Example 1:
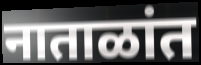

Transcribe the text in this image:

नाताळांत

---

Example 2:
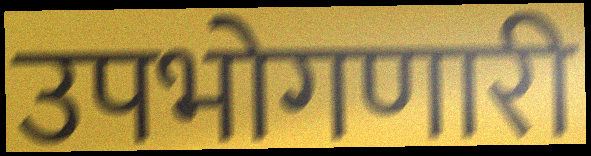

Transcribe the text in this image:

उपभोगणारी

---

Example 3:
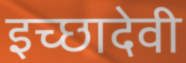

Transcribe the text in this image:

इच्छादेवी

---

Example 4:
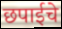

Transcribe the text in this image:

छपाईचे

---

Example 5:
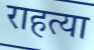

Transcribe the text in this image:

राहत्या